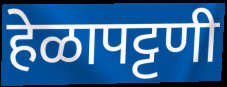
हेळापट्टणी